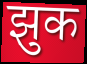
झुक